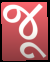
જૂ